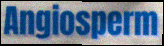
Angiosperm